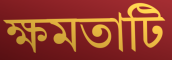
ক্ষমতাটি